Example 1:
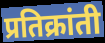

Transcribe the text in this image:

प्रतिक्रांती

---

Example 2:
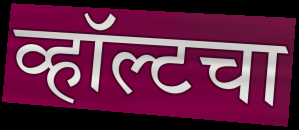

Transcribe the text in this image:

व्हॉल्टचा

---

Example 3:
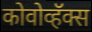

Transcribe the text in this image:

कोवोव्हॅक्स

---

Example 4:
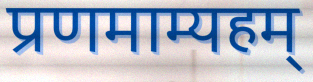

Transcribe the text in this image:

प्रणमाम्यहम्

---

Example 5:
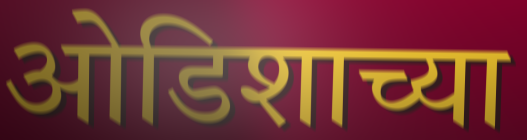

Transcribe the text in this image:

ओडिशाच्या